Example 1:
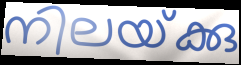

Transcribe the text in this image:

നിലയ്‌ക്കു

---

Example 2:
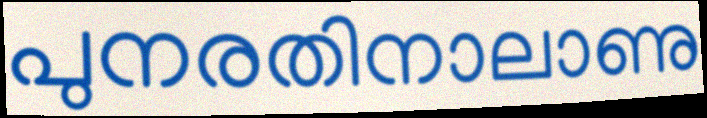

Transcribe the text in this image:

പുനരതിനാലാണു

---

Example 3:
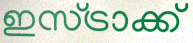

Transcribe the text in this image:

ഇസ്ട്രാക്ക്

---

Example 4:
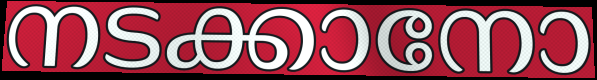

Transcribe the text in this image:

നടക്കാനോ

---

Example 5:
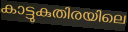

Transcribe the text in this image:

കാട്ടുകുതിരയിലെ